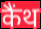
कैंथ